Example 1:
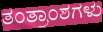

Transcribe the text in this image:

ತಂತ್ರಾಂಶಗಳು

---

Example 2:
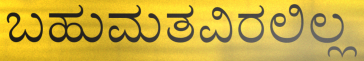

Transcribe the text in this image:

ಬಹುಮತವಿರಲಿಲ್ಲ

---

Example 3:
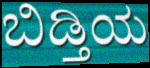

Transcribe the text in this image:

ಬಿಡ್ತಿಯ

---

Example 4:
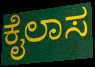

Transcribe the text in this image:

ಕೈಲಾಸ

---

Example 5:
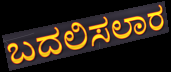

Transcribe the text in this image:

ಬದಲಿಸಲಾರ